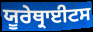
ਯੂਰੇਥ੍ਰਾਈਟਸ